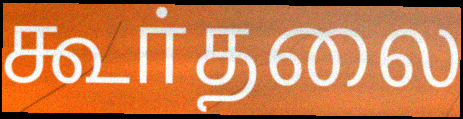
கூர்தலை